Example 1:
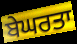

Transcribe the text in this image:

ਬੇਘਰਤਾ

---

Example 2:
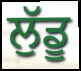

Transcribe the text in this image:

ਲੁੱਡੂ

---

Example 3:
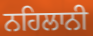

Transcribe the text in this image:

ਨਹਿਲਾਨੀ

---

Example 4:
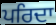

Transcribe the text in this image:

ਪਰਿਦਾ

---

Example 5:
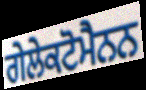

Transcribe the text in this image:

ਗੇਲੇਕਟੋਮੈਨਨ